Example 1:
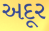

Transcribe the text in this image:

અદૂર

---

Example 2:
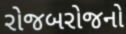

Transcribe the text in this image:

રોજબરોજનો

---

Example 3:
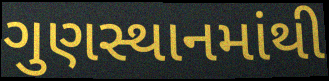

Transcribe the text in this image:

ગુણસ્થાનમાંથી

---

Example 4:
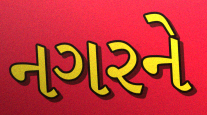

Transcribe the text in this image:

નગરને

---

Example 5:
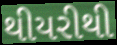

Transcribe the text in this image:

થીયરીથી